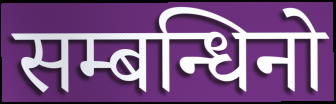
सम्बन्धिनो